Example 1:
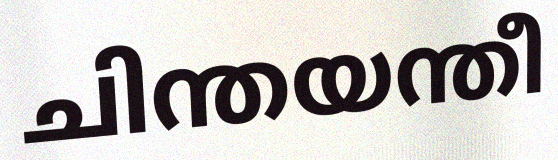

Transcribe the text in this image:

ചിന്തയന്തീ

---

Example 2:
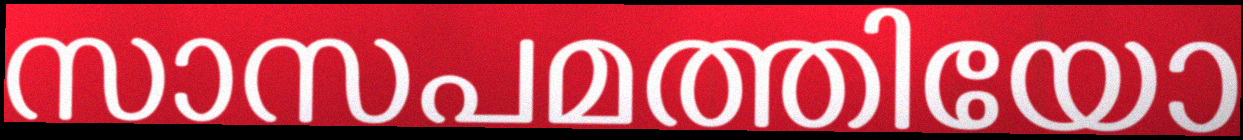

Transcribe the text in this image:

സാസപമത്തിയോ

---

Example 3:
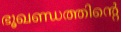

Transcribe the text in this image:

ഭൂഖണ്ഡത്തിന്റെ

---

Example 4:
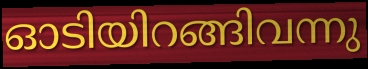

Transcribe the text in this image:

ഓടിയിറങ്ങിവന്നു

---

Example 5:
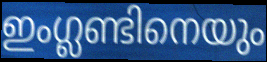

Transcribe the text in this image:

ഇംഗ്ലണ്ടിനെയും